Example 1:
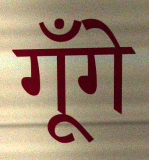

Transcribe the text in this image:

गूँगे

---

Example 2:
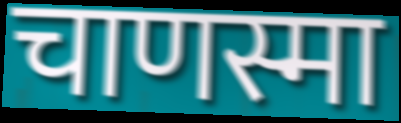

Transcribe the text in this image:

चाणस्मा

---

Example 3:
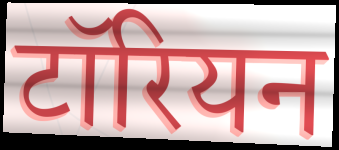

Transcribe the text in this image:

टॉरियन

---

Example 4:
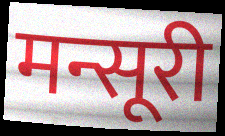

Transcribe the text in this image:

मन्सूरी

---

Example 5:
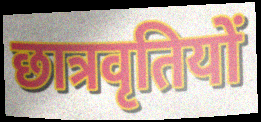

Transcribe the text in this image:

छात्रवृतियों